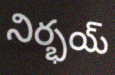
నిర్భయ్